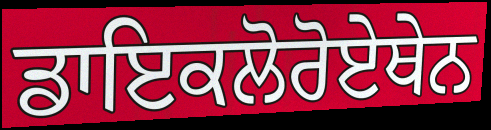
ਡਾਇਕਲੋਰੋਏਥੇਨ